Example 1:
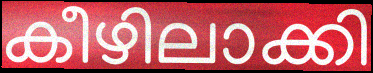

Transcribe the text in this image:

കീഴിലാക്കി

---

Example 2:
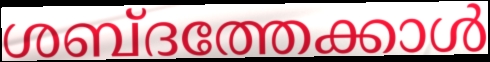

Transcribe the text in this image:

ശബ്ദത്തേക്കാൾ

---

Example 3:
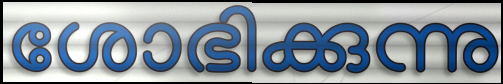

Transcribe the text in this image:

ശോഭിക്കുന്നു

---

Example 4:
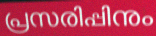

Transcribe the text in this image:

പ്രസരിപ്പിനും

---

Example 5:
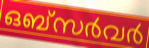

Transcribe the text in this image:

ഒബ്സർവർ